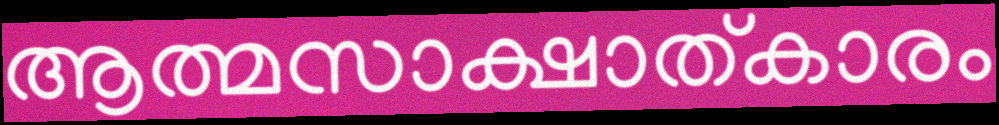
ആത്മസാക്ഷാത്കാരം